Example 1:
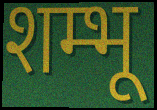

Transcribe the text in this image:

शम्भू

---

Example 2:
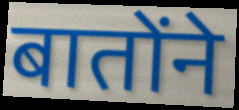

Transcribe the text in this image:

बातोंने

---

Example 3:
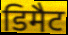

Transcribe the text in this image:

डिमैट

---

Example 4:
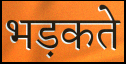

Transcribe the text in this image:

भड़कते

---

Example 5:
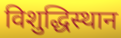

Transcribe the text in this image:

विशुद्धिस्थान